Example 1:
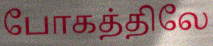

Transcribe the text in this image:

போகத்திலே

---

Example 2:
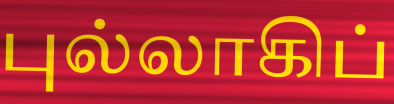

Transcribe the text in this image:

புல்லாகிப்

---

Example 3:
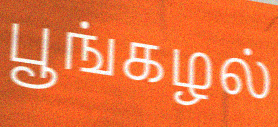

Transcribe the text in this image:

பூங்கழல்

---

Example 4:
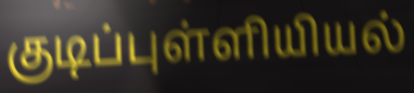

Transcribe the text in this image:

குடிப்புள்ளியியல்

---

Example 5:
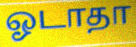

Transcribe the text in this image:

ஓடாதா